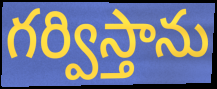
గర్విస్తాను